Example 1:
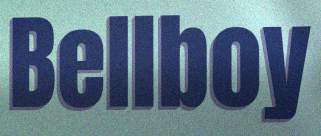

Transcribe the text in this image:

Bellboy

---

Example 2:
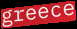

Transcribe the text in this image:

greece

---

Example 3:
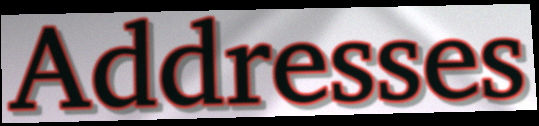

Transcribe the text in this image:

Addresses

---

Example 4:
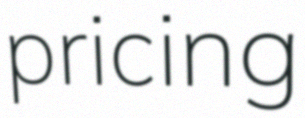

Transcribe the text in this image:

pricing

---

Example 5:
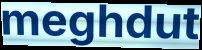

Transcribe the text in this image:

meghdut